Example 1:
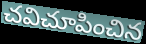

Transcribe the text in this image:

చవిచూపించిన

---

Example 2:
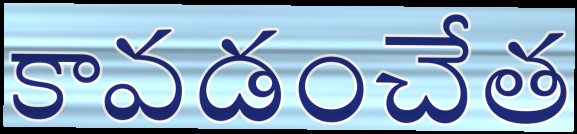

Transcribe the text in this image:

కావడంచేత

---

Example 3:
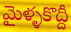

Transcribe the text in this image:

మైళ్ళకొద్దీ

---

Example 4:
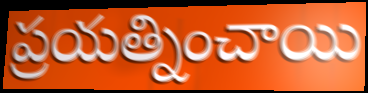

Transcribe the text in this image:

ప్రయత్నించాయి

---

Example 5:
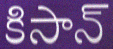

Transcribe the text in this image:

కిసాన్